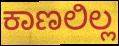
ಕಾಣಲಿಲ್ಲ